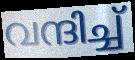
വന്ദിച്ച്